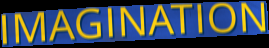
IMAGINATION